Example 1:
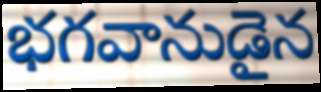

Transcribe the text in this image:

భగవానుడైన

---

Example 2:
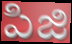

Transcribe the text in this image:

పిజి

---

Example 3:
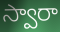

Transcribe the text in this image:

స్వారా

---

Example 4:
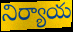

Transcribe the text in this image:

నిర్యాయ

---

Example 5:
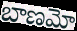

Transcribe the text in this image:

బాణమో